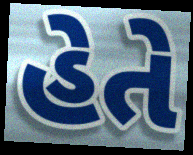
હેતે